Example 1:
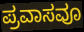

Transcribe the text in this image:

ಪ್ರವಾಸವೂ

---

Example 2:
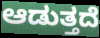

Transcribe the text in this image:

ಆಡುತ್ತದೆ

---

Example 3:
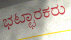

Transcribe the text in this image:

ಭಟ್ಟಾರಕರು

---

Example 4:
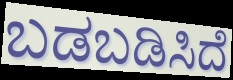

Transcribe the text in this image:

ಬಡಬಡಿಸಿದೆ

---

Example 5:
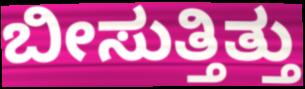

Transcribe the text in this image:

ಬೀಸುತ್ತಿತ್ತು